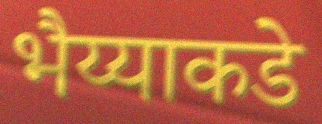
भैय्याकडे